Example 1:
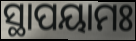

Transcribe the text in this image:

ସ୍ଥାପୟାମଃ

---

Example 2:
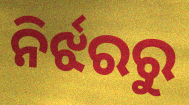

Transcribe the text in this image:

ନିର୍ଝରରୁ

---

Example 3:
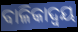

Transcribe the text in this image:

ବାଳିକାଦ୍ୱୟ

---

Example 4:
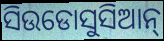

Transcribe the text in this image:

ସିଉଡୋସୁସିଆନ୍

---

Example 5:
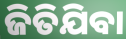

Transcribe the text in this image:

ଜିତିଯିବା